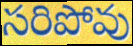
సరిపోవు